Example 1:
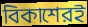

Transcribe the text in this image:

বিকাশেরই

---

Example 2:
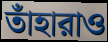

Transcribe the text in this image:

তাঁহারাও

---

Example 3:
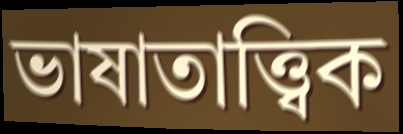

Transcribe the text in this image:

ভাষাতাত্ত্বিক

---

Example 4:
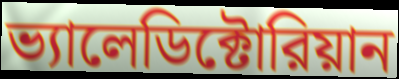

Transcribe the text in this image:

ভ্যালেডিক্টোরিয়ান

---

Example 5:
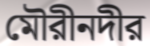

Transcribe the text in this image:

মৌরীনদীর